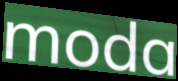
moda